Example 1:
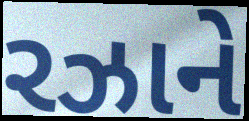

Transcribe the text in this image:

રઝાને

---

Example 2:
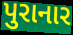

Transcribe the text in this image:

પુરાનાર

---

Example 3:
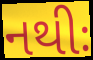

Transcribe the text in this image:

નથીઃ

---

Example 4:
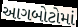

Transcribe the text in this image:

આગબોટોમાં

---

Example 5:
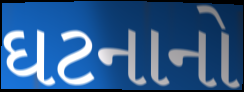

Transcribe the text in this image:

ઘટનાનો